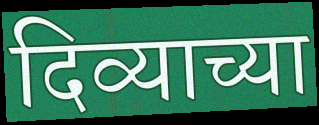
दिव्याच्या